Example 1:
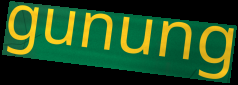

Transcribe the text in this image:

gunung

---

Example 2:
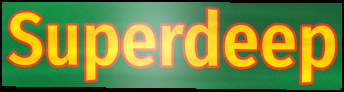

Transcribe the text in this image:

Superdeep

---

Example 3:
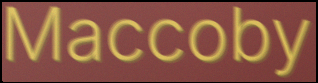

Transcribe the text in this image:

Maccoby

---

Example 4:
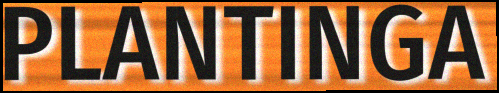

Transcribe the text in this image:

PLANTINGA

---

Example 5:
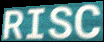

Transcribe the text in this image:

RISC